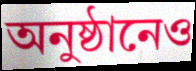
অনুষ্ঠানেও